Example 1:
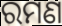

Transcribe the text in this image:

ରମଣ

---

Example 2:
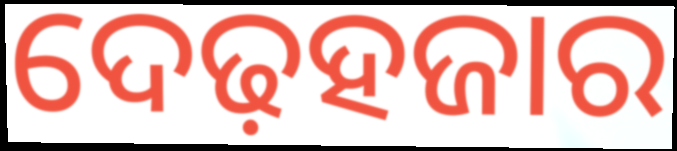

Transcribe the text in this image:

ଦେଢ଼ହଜାର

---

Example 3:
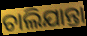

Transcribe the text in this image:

ଚାଲିଯାନ୍ତା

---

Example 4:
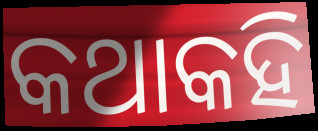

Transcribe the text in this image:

କଥାକହି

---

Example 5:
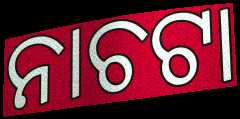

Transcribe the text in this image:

ନାଚଟା